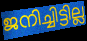
ജനിച്ചിട്ടില്ല